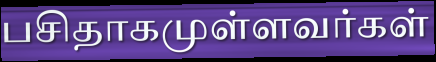
பசிதாகமுள்ளவர்கள்